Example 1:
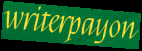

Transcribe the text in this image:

writerpayon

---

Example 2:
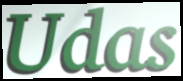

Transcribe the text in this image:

Udas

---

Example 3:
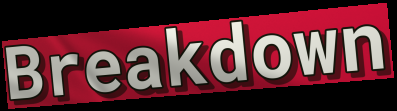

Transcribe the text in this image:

Breakdown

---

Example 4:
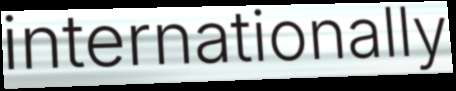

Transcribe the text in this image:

internationally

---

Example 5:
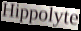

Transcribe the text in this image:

Hippolyte